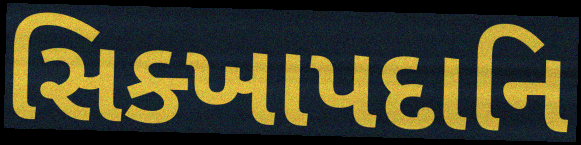
સિક્ખાપદાનિ